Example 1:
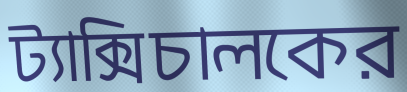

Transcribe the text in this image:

ট্যাক্সিচালকের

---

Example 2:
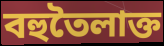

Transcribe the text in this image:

বহুতৈলাক্ত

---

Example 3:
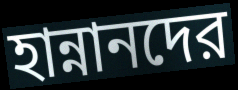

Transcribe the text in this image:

হান্নানদের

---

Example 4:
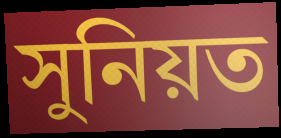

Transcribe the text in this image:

সুনিয়ত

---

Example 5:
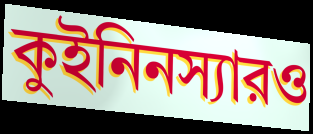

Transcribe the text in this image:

কুইনিনস্যারও